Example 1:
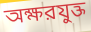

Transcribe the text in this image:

অক্ষরযুক্ত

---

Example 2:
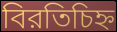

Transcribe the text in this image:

বিরতিচিহ্ন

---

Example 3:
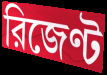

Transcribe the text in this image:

রিজেণ্ট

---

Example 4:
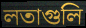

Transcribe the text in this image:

লতাগুলি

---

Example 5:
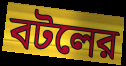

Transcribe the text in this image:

বটলের